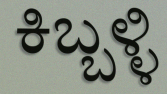
ಕಿಬ್ಬಳ್ಳಿ